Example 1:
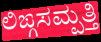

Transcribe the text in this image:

ಲಿಙ್ಗಸಮ್ಪತ್ತಿ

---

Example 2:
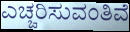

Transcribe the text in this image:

ಎಚ್ಚರಿಸುವಂತಿವೆ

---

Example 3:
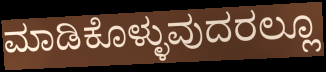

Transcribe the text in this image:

ಮಾಡಿಕೊಳ್ಳುವುದರಲ್ಲೂ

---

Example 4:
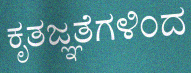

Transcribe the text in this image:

ಕೃತಜ್ಞತೆಗಳಿಂದ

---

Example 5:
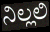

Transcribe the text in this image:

ನಿಲ್ಲಲಿ